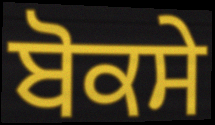
ਬੋਕਸੇ